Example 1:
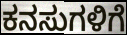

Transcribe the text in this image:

ಕನಸುಗಳಿಗೆ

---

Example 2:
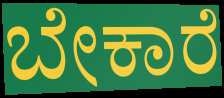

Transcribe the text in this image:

ಬೇಕಾರೆ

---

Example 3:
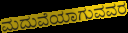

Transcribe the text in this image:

ಮದುವೆಯಾಗುವವರ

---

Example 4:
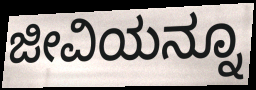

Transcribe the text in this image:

ಜೀವಿಯನ್ನೂ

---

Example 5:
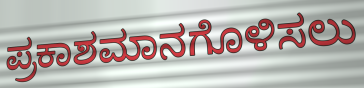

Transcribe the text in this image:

ಪ್ರಕಾಶಮಾನಗೊಳಿಸಲು